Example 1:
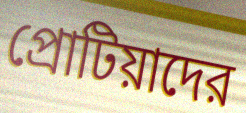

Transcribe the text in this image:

প্রোটিয়াদের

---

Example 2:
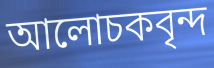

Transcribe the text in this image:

আলোচকবৃন্দ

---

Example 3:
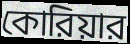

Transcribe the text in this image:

কোরিয়ার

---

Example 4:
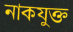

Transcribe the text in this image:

নাকযুক্ত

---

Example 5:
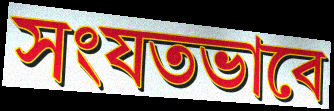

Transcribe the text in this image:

সংযতভাবে